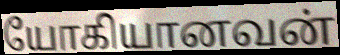
யோகியானவன்